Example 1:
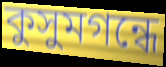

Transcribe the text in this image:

কুসুমগন্ধে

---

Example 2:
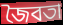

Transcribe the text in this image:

জৈবতা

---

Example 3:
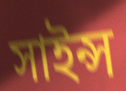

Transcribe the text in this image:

সাইন্স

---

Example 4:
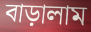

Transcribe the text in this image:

বাড়ালাম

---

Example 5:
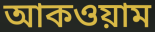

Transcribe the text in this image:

আকওয়াম